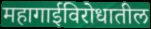
महागाईविरोधातील